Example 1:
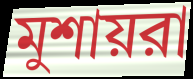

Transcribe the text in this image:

মুশায়রা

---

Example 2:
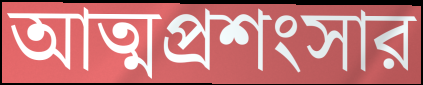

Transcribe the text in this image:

আত্মপ্রশংসার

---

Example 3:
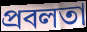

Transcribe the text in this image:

প্রবলতা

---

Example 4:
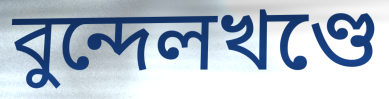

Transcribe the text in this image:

বুন্দেলখণ্ডে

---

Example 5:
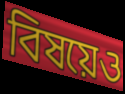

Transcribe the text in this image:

বিষয়েও